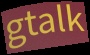
gtalk